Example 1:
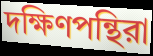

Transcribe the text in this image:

দক্ষিণপন্থিরা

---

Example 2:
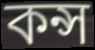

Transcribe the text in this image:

কন্স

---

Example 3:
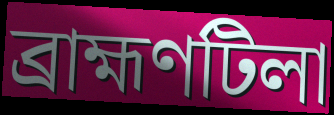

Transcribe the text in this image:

ব্রাহ্মণটিলা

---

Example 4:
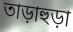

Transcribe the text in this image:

তাড়াহুড়া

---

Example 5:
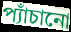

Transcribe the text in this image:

প্যাঁচানো